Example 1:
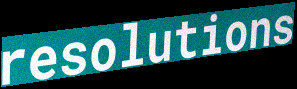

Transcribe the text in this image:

resolutions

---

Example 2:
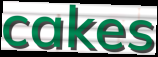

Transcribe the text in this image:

cakes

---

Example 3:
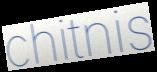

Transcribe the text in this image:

chitnis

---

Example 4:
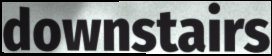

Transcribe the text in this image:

downstairs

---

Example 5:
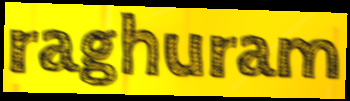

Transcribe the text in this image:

raghuram